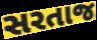
સરતાજ